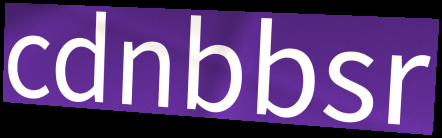
cdnbbsr